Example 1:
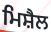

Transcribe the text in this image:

ਮਿਸ਼ੈਲ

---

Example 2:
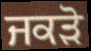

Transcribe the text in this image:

ਜਕੜੋ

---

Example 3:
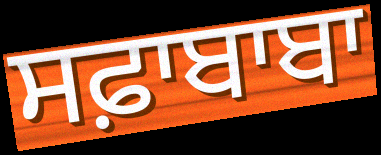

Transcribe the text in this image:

ਸਫ਼ਾਬਾਬਾ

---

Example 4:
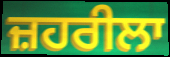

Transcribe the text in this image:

ਜ਼ਹਰੀਲਾ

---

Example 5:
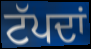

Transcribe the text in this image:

ਟੱਪਦਾਂ